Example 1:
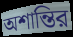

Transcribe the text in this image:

অশান্তির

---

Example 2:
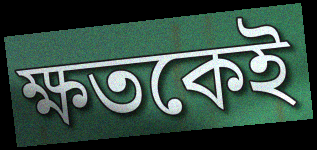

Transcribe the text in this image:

ক্ষতকেই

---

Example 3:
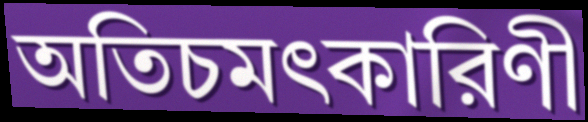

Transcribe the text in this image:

অতিচমৎকারিণী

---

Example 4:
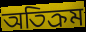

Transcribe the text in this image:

অতিক্রম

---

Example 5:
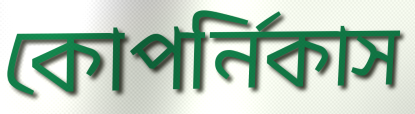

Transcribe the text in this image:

কোপর্নিকাস